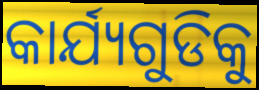
କାର୍ଯ୍ୟଗୁଡିକୁ